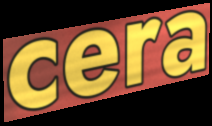
cera